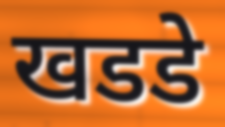
खडडे